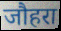
जौहरा